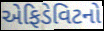
એફિડેવિટનો